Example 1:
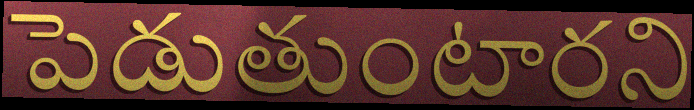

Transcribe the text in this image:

పెడుతుంటారని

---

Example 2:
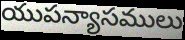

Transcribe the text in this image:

యుపన్యాసములు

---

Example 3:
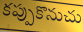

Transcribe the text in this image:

కప్పుకొనుచు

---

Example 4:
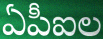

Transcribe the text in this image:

ఏపీఐల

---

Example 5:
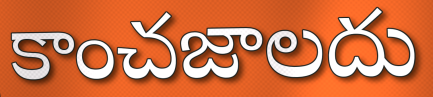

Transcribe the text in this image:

కాంచజాలదు